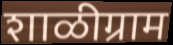
शाळीग्राम